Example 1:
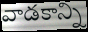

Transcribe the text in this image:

వాడకాన్ని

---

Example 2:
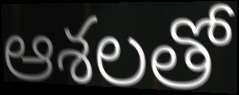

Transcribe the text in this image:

ఆశలతో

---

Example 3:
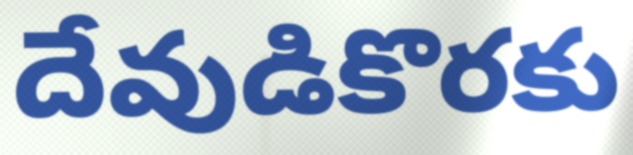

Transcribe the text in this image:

దేవుడికొరకు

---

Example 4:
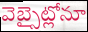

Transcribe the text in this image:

వెబ్సైట్లోనూ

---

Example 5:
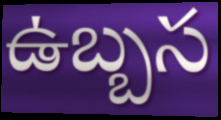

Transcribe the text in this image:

ఉబ్బస